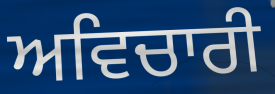
ਅਵਿਚਾਰੀ